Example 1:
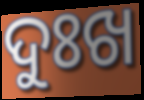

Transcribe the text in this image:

ଦୁଃଖ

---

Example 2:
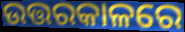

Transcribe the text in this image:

ଉତ୍ତରକାଳରେ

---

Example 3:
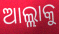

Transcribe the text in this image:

ଆଲ୍ଲାକୁ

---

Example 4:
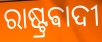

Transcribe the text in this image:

ରାଷ୍ଟ୍ରଵାଦୀ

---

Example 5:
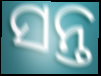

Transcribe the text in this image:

ସନ୍ତ